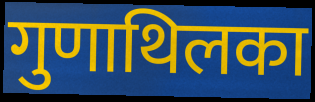
गुणाथिलका